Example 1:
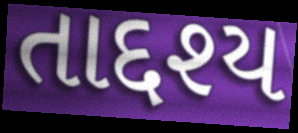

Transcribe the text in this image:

તાદ્દશ્ય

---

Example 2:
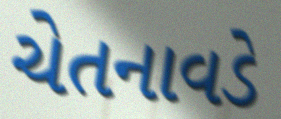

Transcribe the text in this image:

ચેતનાવડે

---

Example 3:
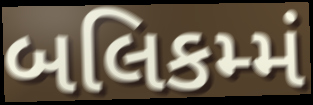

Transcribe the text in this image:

બલિકમ્મં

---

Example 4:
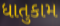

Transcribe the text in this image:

ધાતુકામ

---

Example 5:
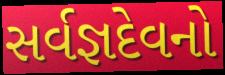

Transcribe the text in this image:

સર્વજ્ઞદેવનો